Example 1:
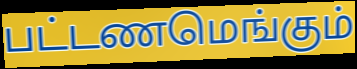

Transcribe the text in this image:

பட்டணமெங்கும்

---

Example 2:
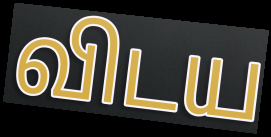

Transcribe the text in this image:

விடய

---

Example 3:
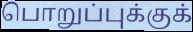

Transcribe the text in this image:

பொறுப்புக்குக்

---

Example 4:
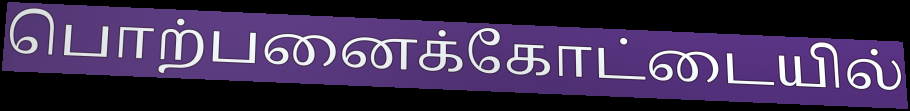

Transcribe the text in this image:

பொற்பனைக்கோட்டையில்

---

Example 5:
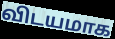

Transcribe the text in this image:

விடயமாக